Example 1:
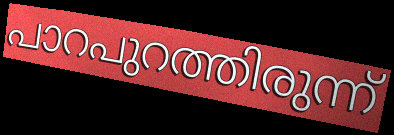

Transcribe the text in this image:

പാറപുറത്തിരുന്ന്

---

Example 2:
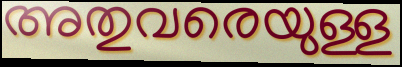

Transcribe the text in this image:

അതുവരെയുള്ള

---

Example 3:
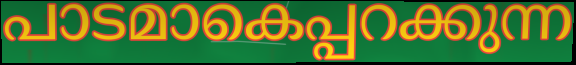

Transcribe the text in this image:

പാടമാകെപ്പറക്കുന്ന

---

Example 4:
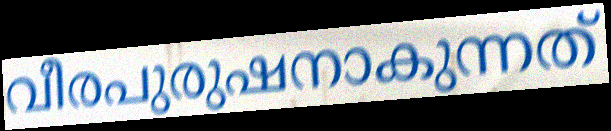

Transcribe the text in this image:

വീരപുരുഷനാകുന്നത്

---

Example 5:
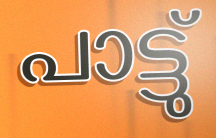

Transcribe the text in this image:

പാട്ടു്